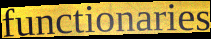
functionaries